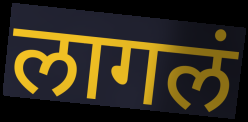
लागलं